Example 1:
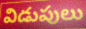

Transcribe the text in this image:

విడుపులు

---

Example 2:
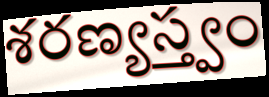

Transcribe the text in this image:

శరణ్యస్త్వం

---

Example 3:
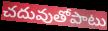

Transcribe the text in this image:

చదువుతోపాటు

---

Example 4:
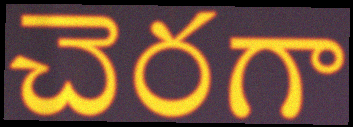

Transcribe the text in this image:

చెరగా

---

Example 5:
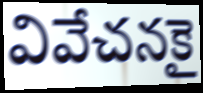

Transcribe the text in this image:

వివేచనకై